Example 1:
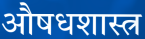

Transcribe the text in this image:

औषधशास्त्र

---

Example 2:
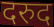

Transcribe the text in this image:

दरुद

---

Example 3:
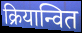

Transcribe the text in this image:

क्रियान्वित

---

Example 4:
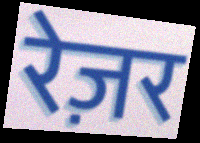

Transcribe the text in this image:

रेज़र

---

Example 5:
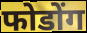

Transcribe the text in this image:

फोडोंग